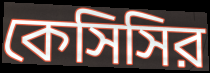
কেসিসির